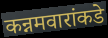
कन्नमवारांकडे